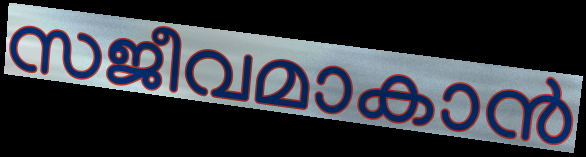
സജീവമാകാൻ